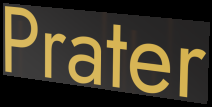
Prater